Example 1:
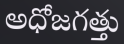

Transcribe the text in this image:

అధోజగత్తు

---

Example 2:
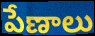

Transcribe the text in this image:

పేణాలు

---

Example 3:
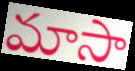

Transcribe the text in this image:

మాసా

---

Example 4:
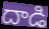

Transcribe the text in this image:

దాడి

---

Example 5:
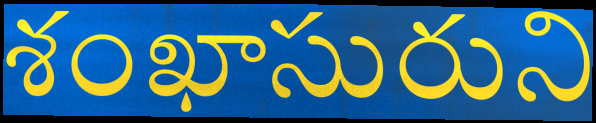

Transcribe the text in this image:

శంఖాసురుని